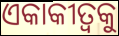
ଏକାକୀତ୍ଵକୁ